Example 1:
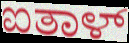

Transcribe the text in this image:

ಐತಾಳ್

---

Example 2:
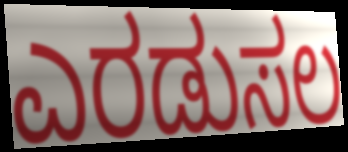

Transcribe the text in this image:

ಎರಡುಸಲ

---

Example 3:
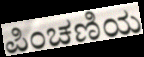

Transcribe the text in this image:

ಪಿಂಚಣಿಯ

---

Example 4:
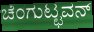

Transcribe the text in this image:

ಚೆಂಗುಟ್ಟವನ್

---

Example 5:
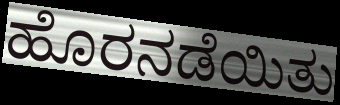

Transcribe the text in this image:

ಹೊರನಡೆಯಿತು